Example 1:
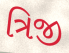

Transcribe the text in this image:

ત્રિજી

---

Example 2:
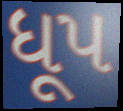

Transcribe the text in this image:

ધૂપ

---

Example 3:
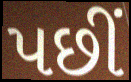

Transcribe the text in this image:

પછીં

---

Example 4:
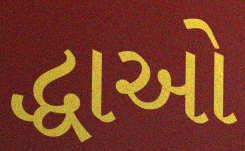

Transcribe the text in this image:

દ્ધાઓ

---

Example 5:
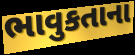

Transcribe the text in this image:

ભાવુકતાના